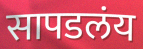
सापडलंय